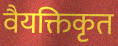
वैयक्तिकृत